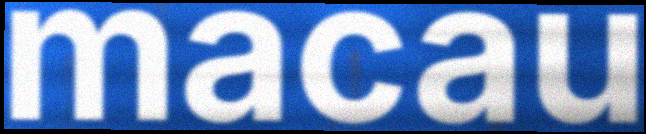
macau